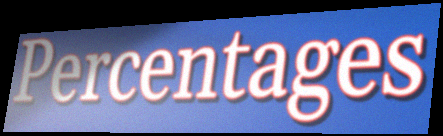
Percentages